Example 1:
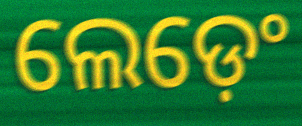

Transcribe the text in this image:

ଲେଡ଼େଂ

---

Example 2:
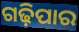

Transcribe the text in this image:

ଗଢ଼ିପାର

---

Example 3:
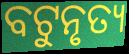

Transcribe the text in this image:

ବଟୁନୃତ୍ୟ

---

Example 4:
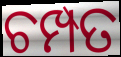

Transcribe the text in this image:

ଚମ୍ପତ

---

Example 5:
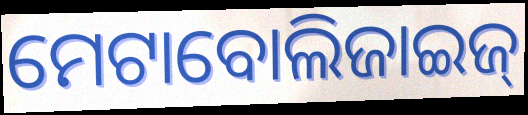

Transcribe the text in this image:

ମେଟାବୋଲିଜାଇଜ୍